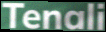
Tenali